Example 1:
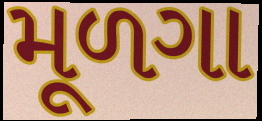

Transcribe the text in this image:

મૂળગા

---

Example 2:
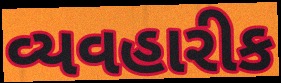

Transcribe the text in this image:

વ્યવહારીક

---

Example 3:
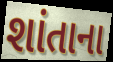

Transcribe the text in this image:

શાંતાના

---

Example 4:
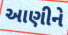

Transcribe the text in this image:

આણીને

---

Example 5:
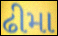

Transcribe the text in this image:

ઢીમા